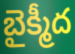
బైక్మీద